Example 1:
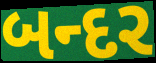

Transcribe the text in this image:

બન્દર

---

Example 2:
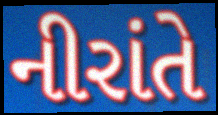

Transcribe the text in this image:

નીરાંતે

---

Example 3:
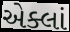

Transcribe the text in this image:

એક્લાં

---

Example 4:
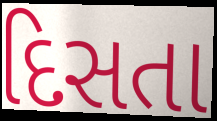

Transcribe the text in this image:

દિસતા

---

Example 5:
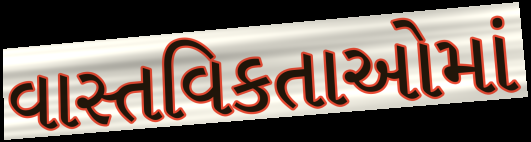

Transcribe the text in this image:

વાસ્તવિકતાઓમાં